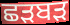
ਛੜਬੜ